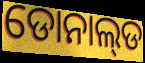
ଡୋନାଲ୍‌ଡ